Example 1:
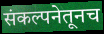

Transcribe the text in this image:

संकल्पनेतूनच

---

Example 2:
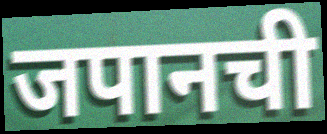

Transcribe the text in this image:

जपानची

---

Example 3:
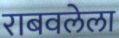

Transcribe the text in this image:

राबवलेला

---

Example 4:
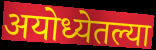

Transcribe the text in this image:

अयोध्येतल्या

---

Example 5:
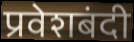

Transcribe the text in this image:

प्रवेशबंदी